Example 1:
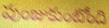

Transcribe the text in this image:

పుంజుకుంటోంది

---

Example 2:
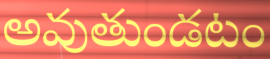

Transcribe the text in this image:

అవుతుండటం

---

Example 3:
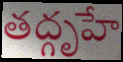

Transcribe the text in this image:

తద్గృహే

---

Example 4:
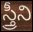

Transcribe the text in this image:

స్త్రీని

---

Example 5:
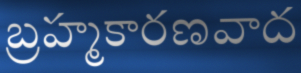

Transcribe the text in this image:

బ్రహ్మకారణవాద